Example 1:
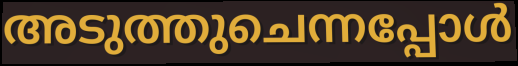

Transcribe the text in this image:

അടുത്തുചെന്നപ്പോൾ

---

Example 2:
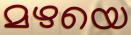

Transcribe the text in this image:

മഴയെ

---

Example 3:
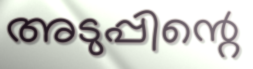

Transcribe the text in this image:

അടുപ്പിന്റെ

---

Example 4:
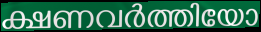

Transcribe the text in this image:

ക്ഷണവർത്തിയോ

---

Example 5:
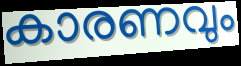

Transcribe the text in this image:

കാരണവും